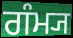
ਗੰਮ੍ਯ